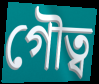
গৌত্ব